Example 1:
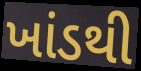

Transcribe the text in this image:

ખાંડથી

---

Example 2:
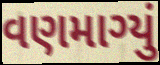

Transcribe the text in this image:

વણમાગ્યું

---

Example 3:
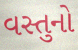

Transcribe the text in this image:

વસ્તુનો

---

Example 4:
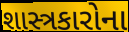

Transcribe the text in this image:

શાસ્ત્રકારોના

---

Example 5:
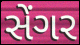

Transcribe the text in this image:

સેંગર